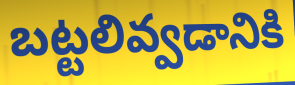
బట్టలివ్వడానికి